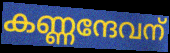
കണ്ണന്ദേവന്